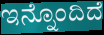
ಇನ್ನೊಂದಿದೆ